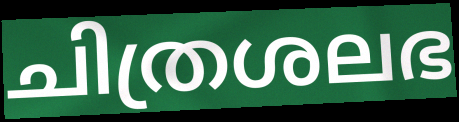
ചിത്രശലഭ